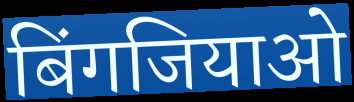
बिंगजियाओ